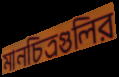
মানচিত্রগুলির